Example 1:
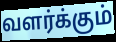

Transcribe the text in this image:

வளர்க்கும்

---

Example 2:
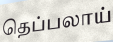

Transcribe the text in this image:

தெப்பலாய்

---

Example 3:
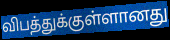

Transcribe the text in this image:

விபத்துக்குள்ளானது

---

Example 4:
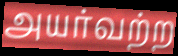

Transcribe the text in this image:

அயர்வற்ற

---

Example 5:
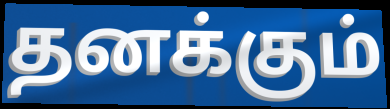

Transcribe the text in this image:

தனக்கும்